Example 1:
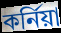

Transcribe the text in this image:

কর্নিয়া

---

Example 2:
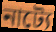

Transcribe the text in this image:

নাট্যে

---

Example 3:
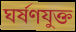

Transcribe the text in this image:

ঘর্ষণযুক্ত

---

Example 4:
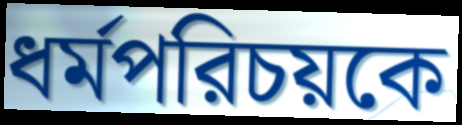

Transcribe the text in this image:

ধর্মপরিচয়কে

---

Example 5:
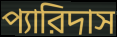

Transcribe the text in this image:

প্যারিদাস